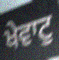
ਖੇਵਾਟੁ